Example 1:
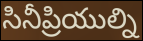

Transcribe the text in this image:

సినీప్రియుల్ని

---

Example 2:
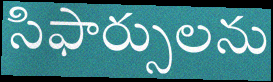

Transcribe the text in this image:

సిఫార్సులను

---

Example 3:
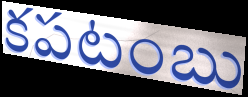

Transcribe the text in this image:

కపటంబు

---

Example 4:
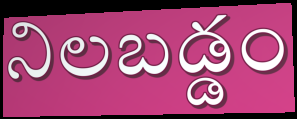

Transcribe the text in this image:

నిలబడ్డం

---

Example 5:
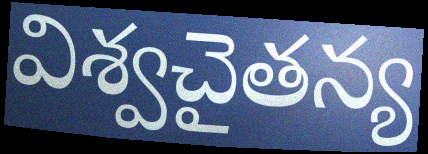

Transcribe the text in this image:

విశ్వచైతన్య